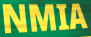
NMIA